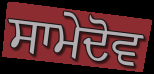
ਸਾਮੇਦੋਵ